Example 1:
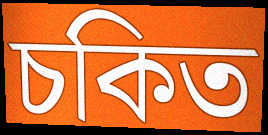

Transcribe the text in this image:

চকিত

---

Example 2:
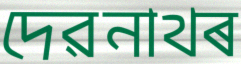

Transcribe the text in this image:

দেৱনাথৰ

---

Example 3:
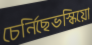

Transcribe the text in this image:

চেৰ্নিছেভস্কিয়ো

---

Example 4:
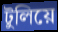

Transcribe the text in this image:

টুলিয়ে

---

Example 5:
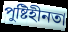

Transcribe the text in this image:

পুষ্টিহীনতা